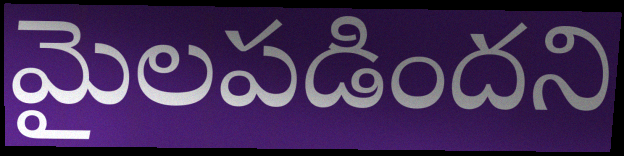
మైలపడిందని